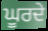
ਘੂਰਦੇ